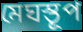
মেঘস্তূপ